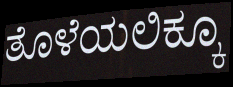
ತೊಳೆಯಲಿಕ್ಕೂ